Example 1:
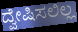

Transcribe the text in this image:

ದ್ವೇಷಿಸಲಿಲ್ಲ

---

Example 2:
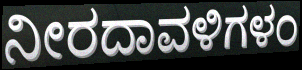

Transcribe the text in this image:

ನೀರದಾವಳಿಗಳಂ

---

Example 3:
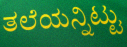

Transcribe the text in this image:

ತಲೆಯನ್ನಿಟ್ಟು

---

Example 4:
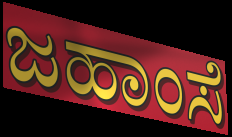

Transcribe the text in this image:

ಜಹಾಂಸೆ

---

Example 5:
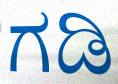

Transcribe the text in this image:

ಗಡಿ